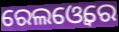
ରେଲଓ୍ୱେରେ